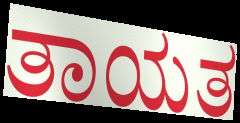
ತಾಯತ